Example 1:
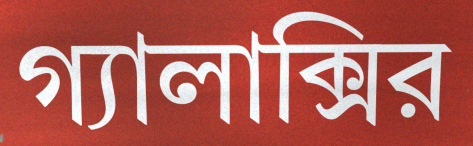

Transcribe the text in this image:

গ্যালাক্সির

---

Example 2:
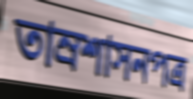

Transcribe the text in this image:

তাম্রশাসনপত্র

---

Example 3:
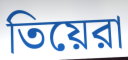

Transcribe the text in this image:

তিয়েরা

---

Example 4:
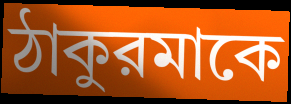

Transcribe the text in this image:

ঠাকুরমাকে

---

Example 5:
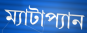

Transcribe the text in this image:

ম্যাটাপ্যান